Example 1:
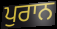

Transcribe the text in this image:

ਪੁਰਾਨ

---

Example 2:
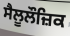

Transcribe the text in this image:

ਸੈਲੂਲੌਜ਼ਿਕ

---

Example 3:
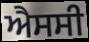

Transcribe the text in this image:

ਐਸਸੀ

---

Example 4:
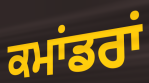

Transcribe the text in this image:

ਕਮਾਂਡਰਾਂ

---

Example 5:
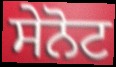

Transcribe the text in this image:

ਸੇਨੋਟ